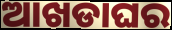
ଆଖଡାଘର